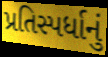
પ્રતિસ્પર્ધાનું